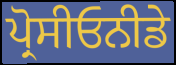
ਪ੍ਰੋਸੀਓਨੀਡੇ